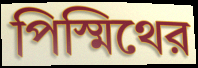
পিস্মিথের